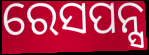
ରେସପନ୍ସ